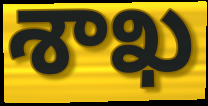
శాఖ